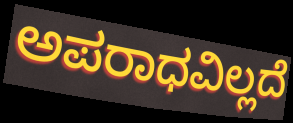
ಅಪರಾಧವಿಲ್ಲದೆ